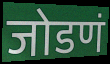
जोडणं